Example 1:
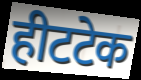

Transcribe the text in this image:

हीटटेक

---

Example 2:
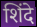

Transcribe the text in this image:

शिंदे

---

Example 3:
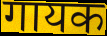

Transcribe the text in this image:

गायक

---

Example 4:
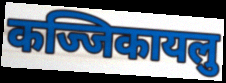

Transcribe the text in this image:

कज्जिकायलु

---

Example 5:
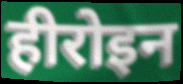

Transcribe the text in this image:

हीरोइन